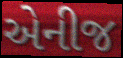
એનીજ